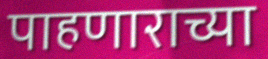
पाहणाराच्या